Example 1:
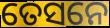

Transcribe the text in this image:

ତେସନେ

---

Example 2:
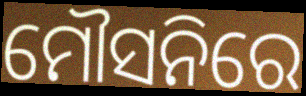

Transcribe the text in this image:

ମୌସନିରେ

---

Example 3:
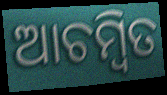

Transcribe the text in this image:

ଆଚମ୍ବିତ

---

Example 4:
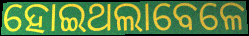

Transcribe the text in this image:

ହୋଇଥଲାବେଳେ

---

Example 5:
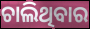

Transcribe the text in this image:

ଚାଲିଥିବାର